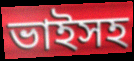
ভাইসহ